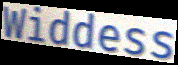
Widdess